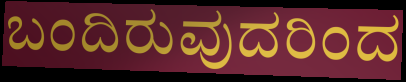
ಬಂದಿರುವುದರಿಂದ